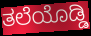
ತಲೆಯೊಡ್ಡಿ